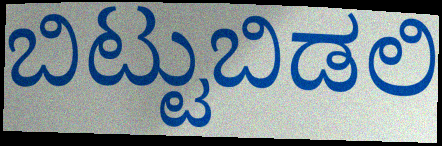
ಬಿಟ್ಟುಬಿಡಲಿ